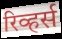
रिव्हर्स